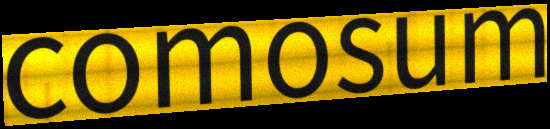
comosum